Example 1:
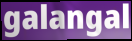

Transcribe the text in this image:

galangal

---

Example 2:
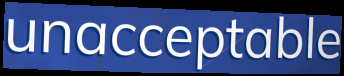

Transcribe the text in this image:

unacceptable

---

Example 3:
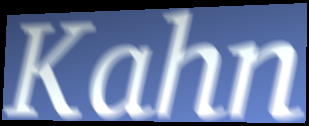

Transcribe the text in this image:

Kahn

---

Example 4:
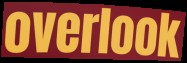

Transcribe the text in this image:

overlook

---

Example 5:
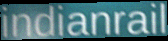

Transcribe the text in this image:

indianrail